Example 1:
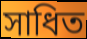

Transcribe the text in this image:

সাধিত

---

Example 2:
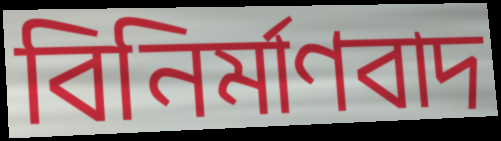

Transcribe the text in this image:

বিনিৰ্মাণবাদ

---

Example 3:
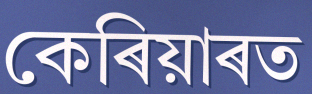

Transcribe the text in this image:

কেৰিয়াৰত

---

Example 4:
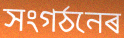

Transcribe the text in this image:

সংগঠনেৰ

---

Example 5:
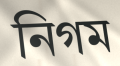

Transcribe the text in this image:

নিগম